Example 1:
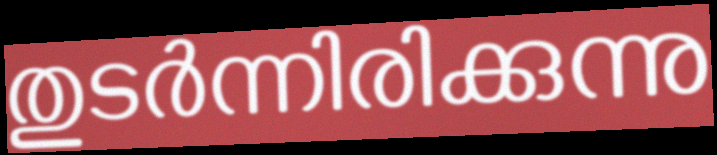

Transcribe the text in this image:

തുടർന്നിരിക്കുന്നു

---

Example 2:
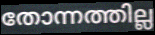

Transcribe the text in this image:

തോന്നത്തില്ല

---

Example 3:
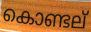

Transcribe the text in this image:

കൊണ്ടല്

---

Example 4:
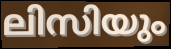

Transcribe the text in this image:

ലിസിയും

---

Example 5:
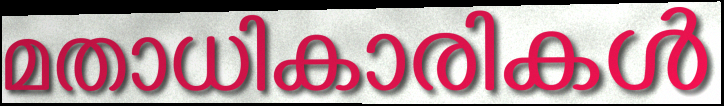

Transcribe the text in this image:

മതാധികാരികൾ